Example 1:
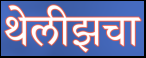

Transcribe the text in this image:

थेलीझचा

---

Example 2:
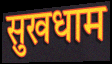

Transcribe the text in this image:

सुखधाम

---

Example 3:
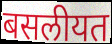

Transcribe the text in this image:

बसलीयत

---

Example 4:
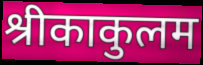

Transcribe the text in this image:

श्रीकाकुलम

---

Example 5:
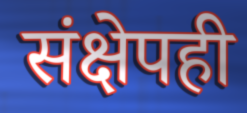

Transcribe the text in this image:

संक्षेपही